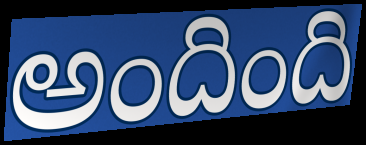
అందింది